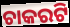
ଚାକରଟି